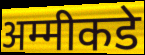
अम्मीकडे